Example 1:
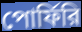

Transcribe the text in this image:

পোর্ফিরি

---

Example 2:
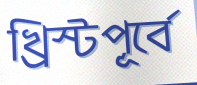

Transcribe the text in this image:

খ্রিস্টপূর্বে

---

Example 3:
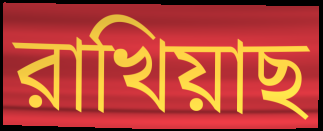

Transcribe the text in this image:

রাখিয়াছ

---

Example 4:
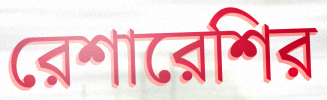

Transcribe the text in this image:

রেশারেশির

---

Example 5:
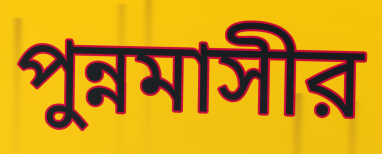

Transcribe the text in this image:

পুন্নমাসীর